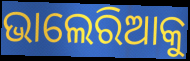
ଭାଲେରିଆକୁ